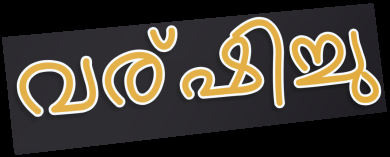
വര്ഷിച്ചു